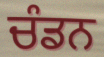
ਚੰਡਨ